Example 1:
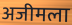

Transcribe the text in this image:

अजीमला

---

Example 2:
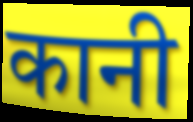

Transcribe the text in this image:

कानी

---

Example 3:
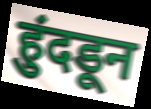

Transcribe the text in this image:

हुंदडून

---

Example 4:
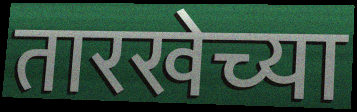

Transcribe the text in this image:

तारखेच्या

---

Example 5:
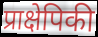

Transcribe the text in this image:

प्राक्षेपिकी